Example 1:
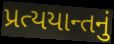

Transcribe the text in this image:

પ્રત્યયાન્તનું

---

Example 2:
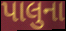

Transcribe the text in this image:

પાલુના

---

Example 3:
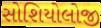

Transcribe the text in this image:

સોશિયોલોજી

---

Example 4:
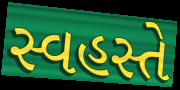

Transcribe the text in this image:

સ્વહસ્તે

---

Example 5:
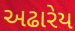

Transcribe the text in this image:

અઢારેય